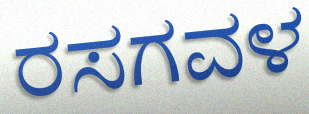
ರಸಗವಳ